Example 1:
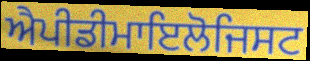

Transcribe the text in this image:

ਐਪੀਡੀਮਾਇਲੋਜਿਸਟ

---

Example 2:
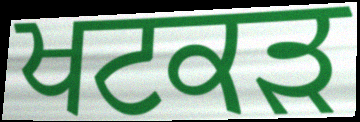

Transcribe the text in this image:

ਖਟਕੜ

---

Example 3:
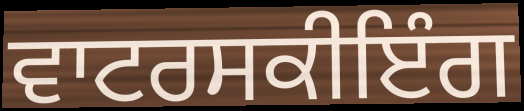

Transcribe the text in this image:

ਵਾਟਰਸਕੀਇੰਗ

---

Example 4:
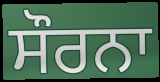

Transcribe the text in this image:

ਸੌਰਨਾ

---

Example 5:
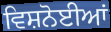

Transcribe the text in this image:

ਵਿਸ਼ਨੋਈਆਂ